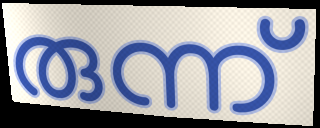
രുന്ന്